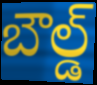
బౌల్డ్